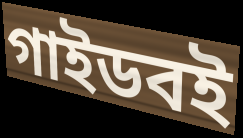
গাইডবই